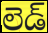
లెడ్